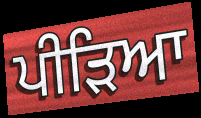
ਪੀੜਿਆ